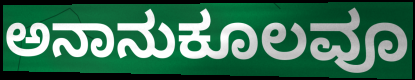
ಅನಾನುಕೂಲವೂ